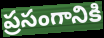
ప్రసంగానికి